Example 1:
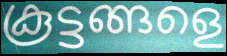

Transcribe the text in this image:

കൂട്ടങ്ങളെ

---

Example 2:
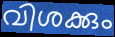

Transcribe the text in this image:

വിശക്കും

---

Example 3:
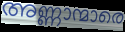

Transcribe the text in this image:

അണ്ണാന്മാരെ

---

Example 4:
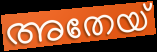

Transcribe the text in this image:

അതേയ്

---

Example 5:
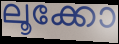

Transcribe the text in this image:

ലൂക്കോ